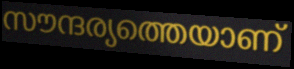
സൗന്ദര്യത്തെയാണ്